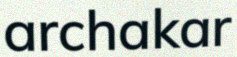
archakar